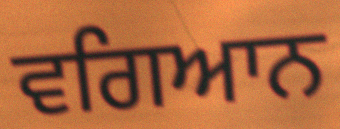
ਵਗਿਆਨ